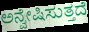
ಅನ್ವೇಷಿಸುತ್ತದೆ